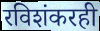
रविशंकरही